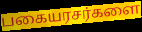
பகையரசர்களை